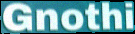
Gnothi